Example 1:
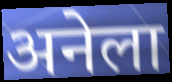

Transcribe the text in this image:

अनेला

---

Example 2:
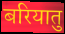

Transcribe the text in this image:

बरियातु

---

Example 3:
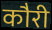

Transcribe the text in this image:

कौरी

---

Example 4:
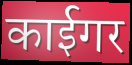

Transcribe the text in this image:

काईगर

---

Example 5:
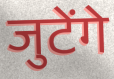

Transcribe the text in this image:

जुटेंगे